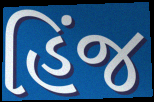
હિંજ